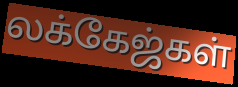
லக்கேஜ்கள்